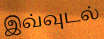
இவ்வுடல்